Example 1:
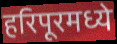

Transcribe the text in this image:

हरिपूरमध्ये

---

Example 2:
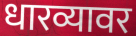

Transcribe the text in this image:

धारव्यावर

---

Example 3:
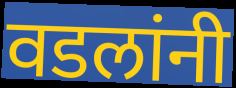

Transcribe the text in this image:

वडलांनी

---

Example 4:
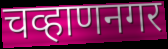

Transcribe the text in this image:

चव्हाणनगर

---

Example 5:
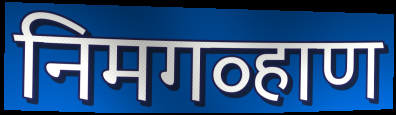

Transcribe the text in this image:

निमगव्हाण